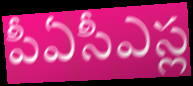
పీఏసీఎస్ల